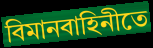
বিমানবাহিনীতে